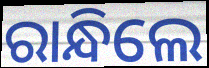
ରାନ୍ଧିଲେ